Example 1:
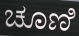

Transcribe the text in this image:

ಚೂಣಿ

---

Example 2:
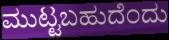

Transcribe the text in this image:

ಮುಟ್ಟಬಹುದೆಂದು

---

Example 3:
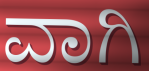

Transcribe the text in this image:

ವಾಗಿ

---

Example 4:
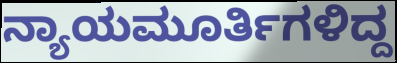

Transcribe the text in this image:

ನ್ಯಾಯಮೂರ್ತಿಗಳಿದ್ದ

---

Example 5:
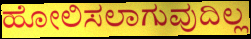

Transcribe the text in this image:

ಹೋಲಿಸಲಾಗುವುದಿಲ್ಲ